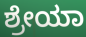
ಶ್ರೇಯಾ